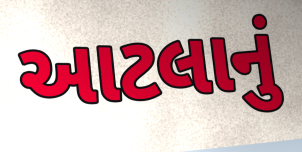
આટલાનું